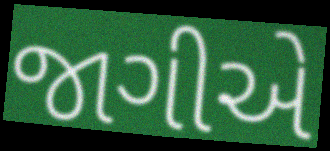
જાગીએ